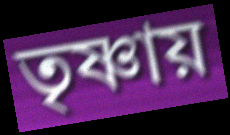
তৃষ্ণায়